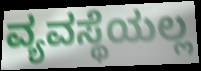
ವ್ಯವಸ್ಥೆಯಲ್ಲ